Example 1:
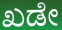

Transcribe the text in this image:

ಖಡೇ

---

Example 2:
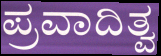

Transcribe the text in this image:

ಪ್ರವಾದಿತ್ವ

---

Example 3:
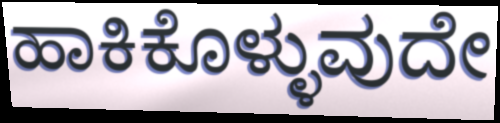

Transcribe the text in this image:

ಹಾಕಿಕೊಳ್ಳುವುದೇ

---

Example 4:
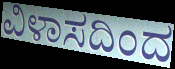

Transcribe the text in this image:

ವಿಳಾಸದಿಂದ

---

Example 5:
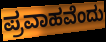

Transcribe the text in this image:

ಪ್ರವಾಹವೆಂದು